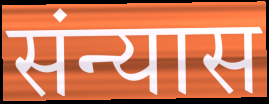
संन्यास